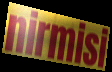
nirmisi